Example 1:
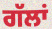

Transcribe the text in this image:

ਗੱਲਾਂ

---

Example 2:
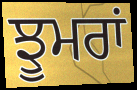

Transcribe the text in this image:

ਝੂਮਰਾਂ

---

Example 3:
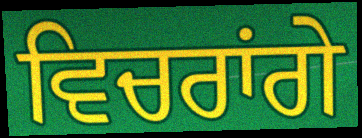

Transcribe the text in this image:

ਵਿਚਰਾਂਗੇ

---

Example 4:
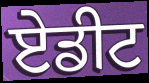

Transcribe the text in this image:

ਏਡੀਟ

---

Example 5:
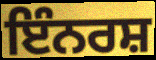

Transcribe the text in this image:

ਇੰਨਰਸ਼